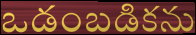
ఒడంబడికను